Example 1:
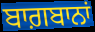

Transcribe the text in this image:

ਬਾਗ਼ਬਾਨਾਂ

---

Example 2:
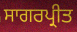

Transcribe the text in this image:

ਸਾਗਰਪ੍ਰੀਤ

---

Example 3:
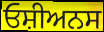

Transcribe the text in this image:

ਓਸ਼ੀਅਨਸ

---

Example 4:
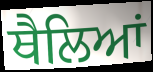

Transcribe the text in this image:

ਥੈਲਿਆਂ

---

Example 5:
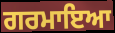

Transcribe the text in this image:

ਗਰਮਾਇਆ